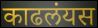
काढलंयस